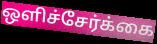
ஒளிச்சேர்க்கை